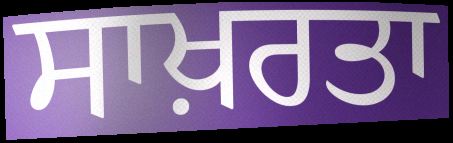
ਸਾਖ਼ਰਤਾ